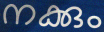
നക്കും